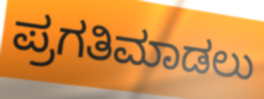
ಪ್ರಗತಿಮಾಡಲು